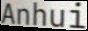
Anhui